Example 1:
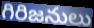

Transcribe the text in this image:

గిరిజనులు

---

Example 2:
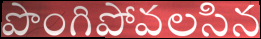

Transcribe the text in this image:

పొంగిపోవలసిన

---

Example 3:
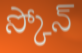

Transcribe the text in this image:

స్కోన్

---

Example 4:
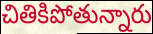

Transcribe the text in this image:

చితికిపోతున్నారు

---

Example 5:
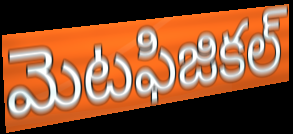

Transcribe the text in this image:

మెటఫిజికల్